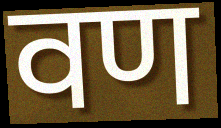
वण